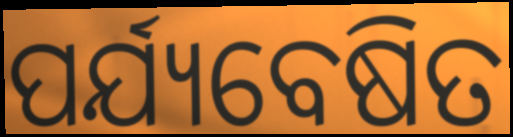
ପର୍ଯ୍ୟବେଷିତ